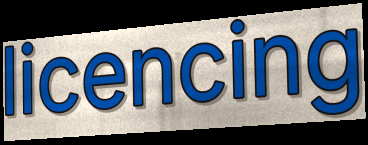
licencing